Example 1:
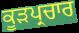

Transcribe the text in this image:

ਕੂੜਪ੍ਰਚਾਰ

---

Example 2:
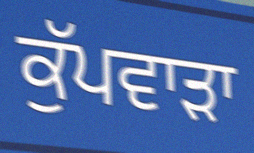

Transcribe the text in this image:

ਕੁੱਪਵਾੜਾ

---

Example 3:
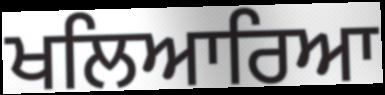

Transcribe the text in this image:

ਖਲਿਆਰਿਆ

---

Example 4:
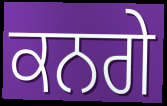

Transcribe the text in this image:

ਕਨਗੇ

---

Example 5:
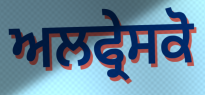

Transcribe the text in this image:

ਅਲਫ੍ਰੇਸਕੋ